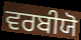
ਵਰਬੀਯੋ